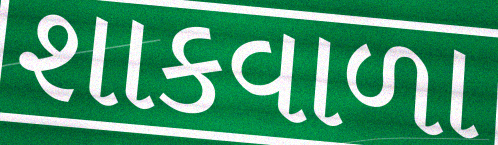
શાકવાળા